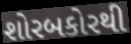
શોરબકોરથી